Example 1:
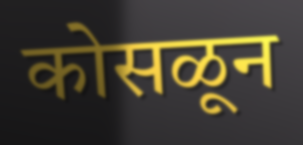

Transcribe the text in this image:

कोसळून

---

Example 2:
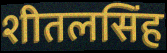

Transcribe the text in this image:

शीतलसिंह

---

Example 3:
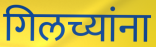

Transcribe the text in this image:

गिलच्यांना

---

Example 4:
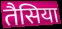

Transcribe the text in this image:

तैसिया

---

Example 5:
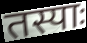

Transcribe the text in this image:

तस्याः